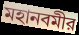
মহানবমীর